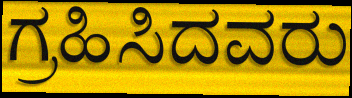
ಗ್ರಹಿಸಿದವರು